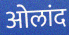
ओलांद